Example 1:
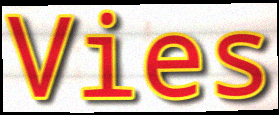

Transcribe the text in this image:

Vies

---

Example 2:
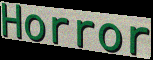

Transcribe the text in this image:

Horror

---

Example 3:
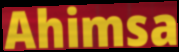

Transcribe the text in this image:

Ahimsa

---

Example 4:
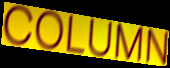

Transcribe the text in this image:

COLUMN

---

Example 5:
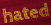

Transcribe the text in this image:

hated